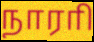
நாரரி